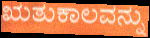
ಋತುಕಾಲವನ್ನು